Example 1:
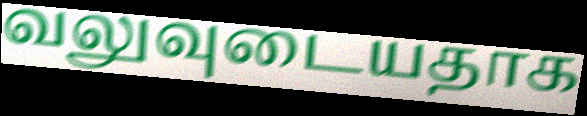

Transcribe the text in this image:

வலுவுடையதாக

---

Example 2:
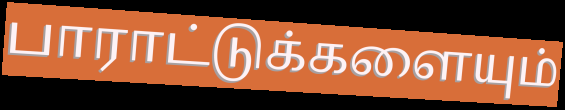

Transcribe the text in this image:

பாராட்டுக்களையும்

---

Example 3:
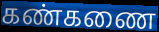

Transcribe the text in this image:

கண்கணை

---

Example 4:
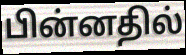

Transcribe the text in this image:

பின்னதில்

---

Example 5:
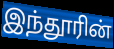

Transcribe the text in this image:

இந்தூரின்